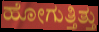
ಹೋಗುತ್ತಿತ್ತು